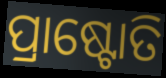
ପ୍ରାଷ୍ଟୋତି